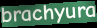
brachyura